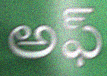
అఫ్